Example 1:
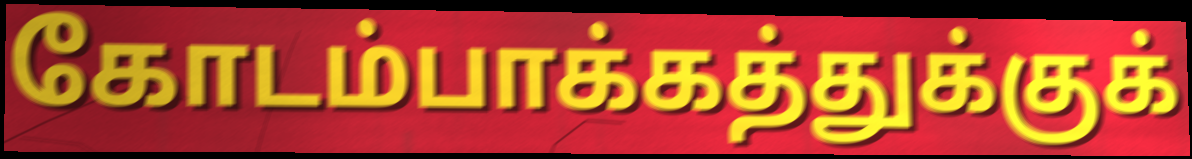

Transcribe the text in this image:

கோடம்பாக்கத்துக்குக்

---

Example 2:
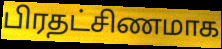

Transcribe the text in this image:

பிரதட்சிணமாக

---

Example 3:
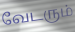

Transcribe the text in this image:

வேடரும்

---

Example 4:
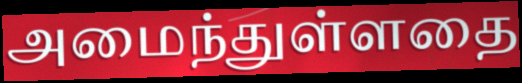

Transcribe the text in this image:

அமைந்துள்ளதை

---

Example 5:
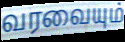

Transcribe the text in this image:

வரவையும்